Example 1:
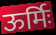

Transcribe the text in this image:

ऊर्मिः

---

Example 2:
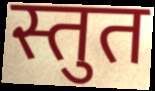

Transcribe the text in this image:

स्तुत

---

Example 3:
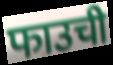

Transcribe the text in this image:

फाउची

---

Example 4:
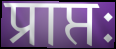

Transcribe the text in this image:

प्राप्तः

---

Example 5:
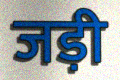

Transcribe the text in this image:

जड़ी